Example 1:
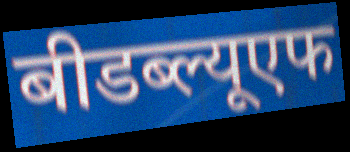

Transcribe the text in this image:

बीडब्ल्यूएफ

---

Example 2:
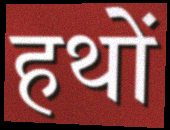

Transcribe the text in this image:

हथों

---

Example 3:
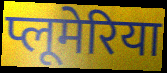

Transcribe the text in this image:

प्लूमेरिया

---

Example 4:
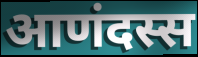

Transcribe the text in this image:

आणंदस्स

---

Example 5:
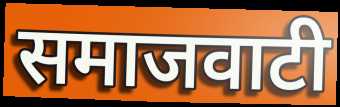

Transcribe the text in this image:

समाजवाटी